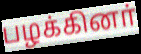
பழக்கினர்